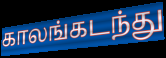
காலங்கடந்து